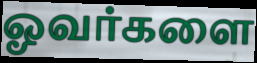
ஓவர்களை